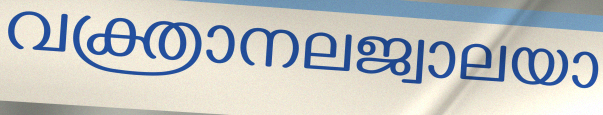
വക്ത്രാനലജ്വാലയാ